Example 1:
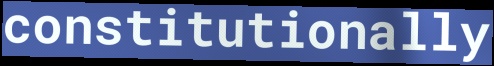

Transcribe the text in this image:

constitutionally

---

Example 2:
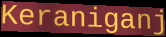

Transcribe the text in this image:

Keraniganj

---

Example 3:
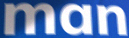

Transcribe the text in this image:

man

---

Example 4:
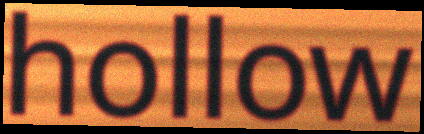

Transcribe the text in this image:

hollow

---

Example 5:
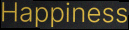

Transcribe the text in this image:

Happiness